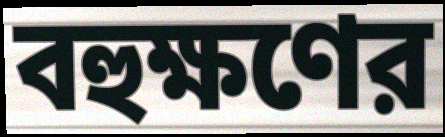
বহুক্ষণের